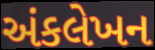
અંકલેખન